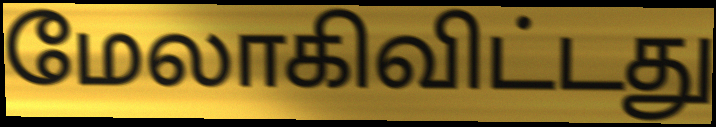
மேலாகிவிட்டது